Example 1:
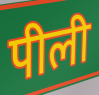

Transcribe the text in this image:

पीली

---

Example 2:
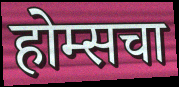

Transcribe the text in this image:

होम्सचा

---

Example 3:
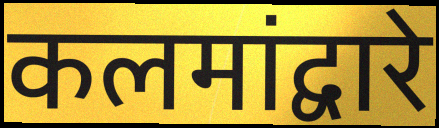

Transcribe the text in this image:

कलमांद्वारे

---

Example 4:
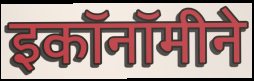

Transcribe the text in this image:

इकॉनॉमीने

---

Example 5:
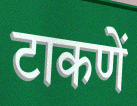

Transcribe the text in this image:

टाकणें